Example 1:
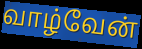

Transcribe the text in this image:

வாழ்வேன்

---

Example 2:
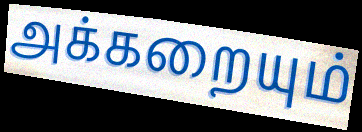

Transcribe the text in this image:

அக்கறையும்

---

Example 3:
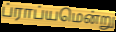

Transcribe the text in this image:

ப்ராப்யமென்று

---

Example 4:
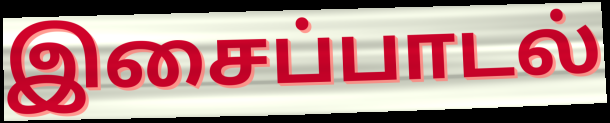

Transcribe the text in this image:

இசைப்பாடல்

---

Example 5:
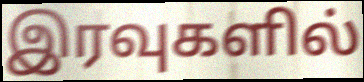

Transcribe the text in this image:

இரவுகளில்